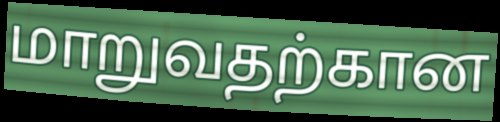
மாறுவதற்கான